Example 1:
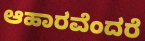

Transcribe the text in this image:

ಆಹಾರವೆಂದರೆ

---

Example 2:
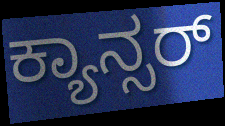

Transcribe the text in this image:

ಕ್ಯಾನ್ಸರ್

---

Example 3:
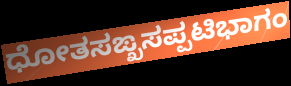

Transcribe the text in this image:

ಧೋತಸಙ್ಖಸಪ್ಪಟಿಭಾಗಂ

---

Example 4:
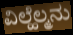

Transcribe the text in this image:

ವಿಲ್ಹೆಲ್ಮನು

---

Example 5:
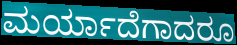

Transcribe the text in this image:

ಮರ್ಯಾದೆಗಾದರೂ